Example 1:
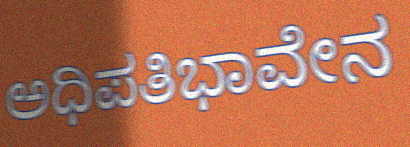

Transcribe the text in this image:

ಅಧಿಪತಿಭಾವೇನ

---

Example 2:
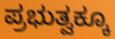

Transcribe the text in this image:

ಪ್ರಭುತ್ವಕ್ಕೂ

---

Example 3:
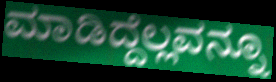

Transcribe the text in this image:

ಮಾಡಿದ್ದೆಲ್ಲವನ್ನೂ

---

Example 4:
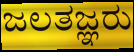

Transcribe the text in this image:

ಜಲತಜ್ಞರು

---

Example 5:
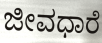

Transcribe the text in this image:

ಜೀವಧಾರೆ